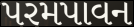
પરમપાવન